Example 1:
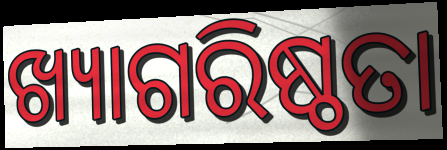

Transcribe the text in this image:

ଖ୍ୟାଗରିଷ୍ଠତା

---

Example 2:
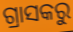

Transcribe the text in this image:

ଗ୍ରାସକରୁ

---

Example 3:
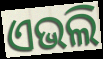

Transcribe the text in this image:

ଏଭଲି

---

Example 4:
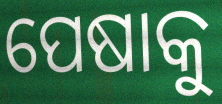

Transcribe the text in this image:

ପେଷାକୁ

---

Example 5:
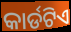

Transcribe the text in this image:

କାର୍ଡଟିଏ